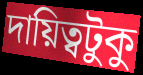
দায়িত্বটুকু